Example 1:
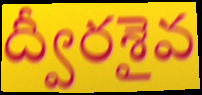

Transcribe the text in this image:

ద్వీరశైవ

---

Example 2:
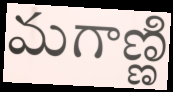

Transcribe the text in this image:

మగాణ్ణి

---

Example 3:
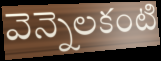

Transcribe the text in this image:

వెన్నెలకంటి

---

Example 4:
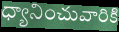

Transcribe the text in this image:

ధ్యానించువారికి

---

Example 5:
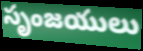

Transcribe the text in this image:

సృంజయులు